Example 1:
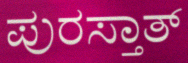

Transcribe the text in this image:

ಪುರಸ್ತಾತ್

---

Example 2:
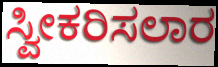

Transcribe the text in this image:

ಸ್ವೀಕರಿಸಲಾರ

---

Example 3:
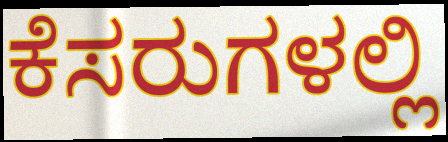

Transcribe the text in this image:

ಕೆಸರುಗಳಲ್ಲಿ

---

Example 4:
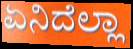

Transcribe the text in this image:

ಏನಿದೆಲ್ಲಾ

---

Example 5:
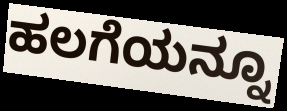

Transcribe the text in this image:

ಹಲಗೆಯನ್ನೂ